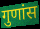
गुणांस